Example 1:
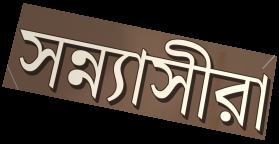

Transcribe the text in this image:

সন্ন্যাসীরা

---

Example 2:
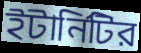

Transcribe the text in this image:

ইটার্নিটির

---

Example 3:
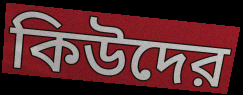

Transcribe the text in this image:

কিউদের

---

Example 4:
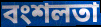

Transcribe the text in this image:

বংশলতা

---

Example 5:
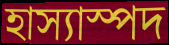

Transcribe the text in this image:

হাস্যাস্পদ